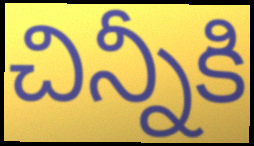
చిన్నీకి